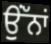
ਉਂੱਨਾਂ